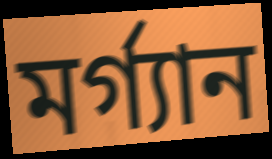
মর্গ্যান